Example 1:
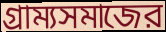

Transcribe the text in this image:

গ্রাম্যসমাজের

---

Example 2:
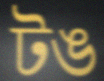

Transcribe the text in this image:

টঙ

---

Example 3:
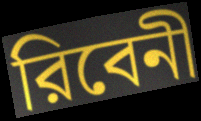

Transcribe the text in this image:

রিবেনী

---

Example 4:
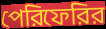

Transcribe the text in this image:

পেরিফেরির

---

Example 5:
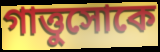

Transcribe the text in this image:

গাত্তুসোকে